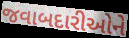
જવાબદારીઓને